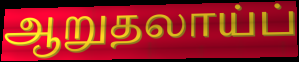
ஆறுதலாய்ப்